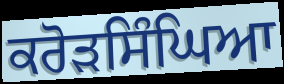
ਕਰੋੜਸਿੰਘਿਆ